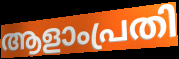
ആളാംപ്രതി